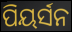
ପିୟର୍ସନ